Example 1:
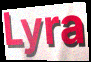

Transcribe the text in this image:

Lyra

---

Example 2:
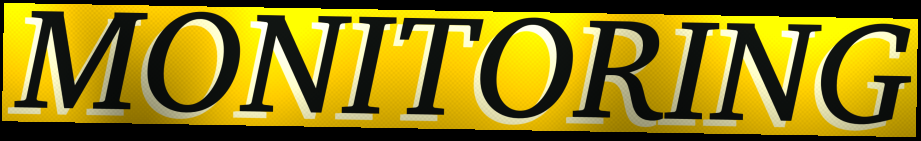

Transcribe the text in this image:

MONITORING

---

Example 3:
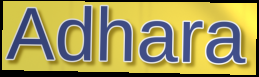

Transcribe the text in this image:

Adhara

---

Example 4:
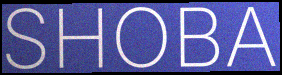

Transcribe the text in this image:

SHOBA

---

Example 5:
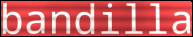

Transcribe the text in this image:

bandilla